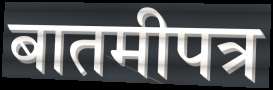
बातमीपत्र